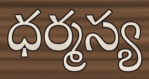
ధర్మస్య